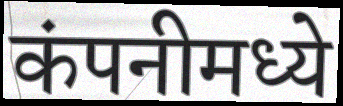
कंपनीमध्ये